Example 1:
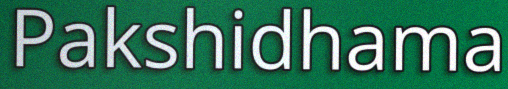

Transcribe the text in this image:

Pakshidhama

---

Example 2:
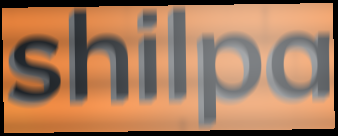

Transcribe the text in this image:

shilpa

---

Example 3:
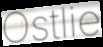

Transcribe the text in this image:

Ostlie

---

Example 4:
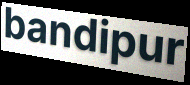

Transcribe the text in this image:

bandipur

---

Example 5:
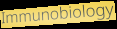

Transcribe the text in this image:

Immunobiology